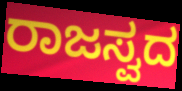
ರಾಜಸ್ವದ